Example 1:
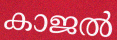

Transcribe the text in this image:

കാജൽ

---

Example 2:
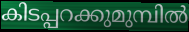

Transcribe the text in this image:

കിടപ്പറക്കുമുമ്പിൽ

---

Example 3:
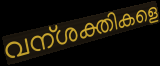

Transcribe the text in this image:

വന്ശക്തികളെ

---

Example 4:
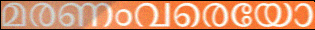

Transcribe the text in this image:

മരണംവരെയോ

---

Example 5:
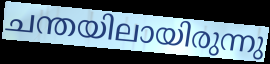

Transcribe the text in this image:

ചന്തയിലായിരുന്നു